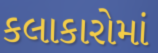
કલાકારોમાં